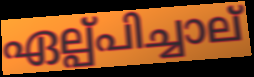
ഏല്പ്പിച്ചാല്